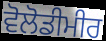
ਵੋਲੋਡੀਮੀਰ